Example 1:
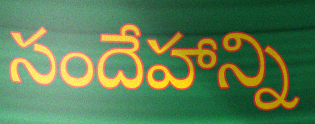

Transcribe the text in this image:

సందేహాన్ని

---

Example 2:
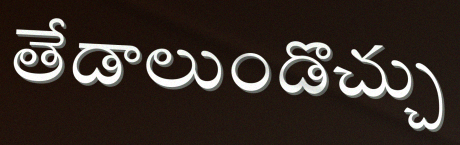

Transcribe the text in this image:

తేడాలుండొచ్చు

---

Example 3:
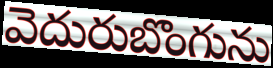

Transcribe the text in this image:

వెదురుబొంగును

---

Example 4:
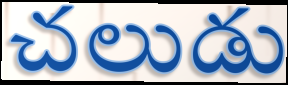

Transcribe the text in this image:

చలుడు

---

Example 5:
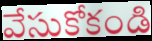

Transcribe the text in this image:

వేసుకోకండి